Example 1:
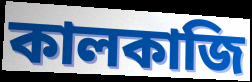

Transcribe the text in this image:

কালকাজি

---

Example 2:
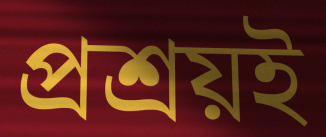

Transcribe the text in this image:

প্রশ্রয়ই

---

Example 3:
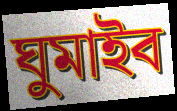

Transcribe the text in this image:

ঘুমাইব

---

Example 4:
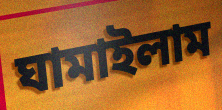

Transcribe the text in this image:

ঘামাইলাম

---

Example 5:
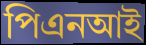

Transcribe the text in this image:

পিএনআই